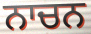
ਨਾਚਨ